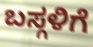
ಬಸ್ಗಳಿಗೆ